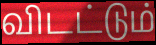
விடட்டும்